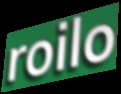
roilo